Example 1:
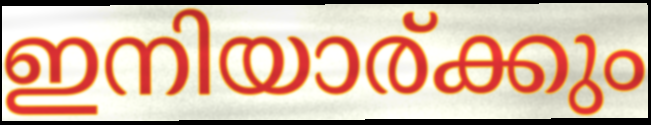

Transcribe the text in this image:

ഇനിയാര്ക്കും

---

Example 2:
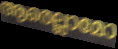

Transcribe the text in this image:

ആരെല്ലാമോ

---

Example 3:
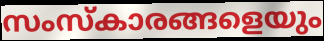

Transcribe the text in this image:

സംസ്കാരങ്ങളെയും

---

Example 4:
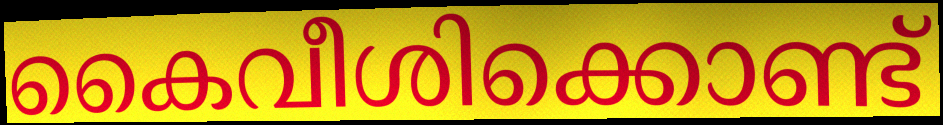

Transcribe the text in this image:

കൈവീശിക്കൊണ്ട്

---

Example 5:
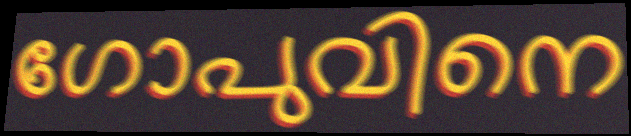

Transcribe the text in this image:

ഗോപുവിനെ